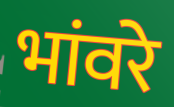
भांवरे